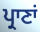
ਪ੍ਰਾਣਾਂ